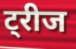
ट्रीज